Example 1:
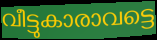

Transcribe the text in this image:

വീട്ടുകാരാവട്ടെ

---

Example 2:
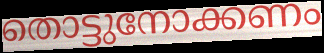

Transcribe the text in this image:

തൊട്ടുനോക്കണം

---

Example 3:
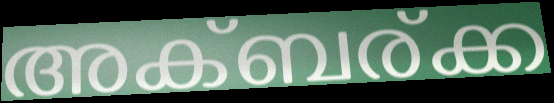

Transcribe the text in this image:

അക്ബര്ക്ക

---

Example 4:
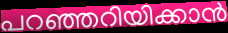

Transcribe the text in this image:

പറഞ്ഞറിയിക്കാൻ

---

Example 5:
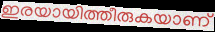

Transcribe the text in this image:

ഇരയായിത്തീരുകയാണ്